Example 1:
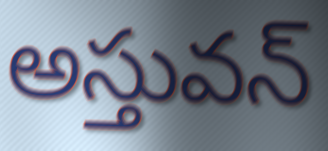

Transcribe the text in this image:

అస్తువన్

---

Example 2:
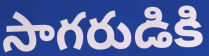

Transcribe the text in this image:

సాగరుడికి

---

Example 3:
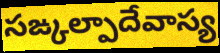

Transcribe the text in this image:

సఙ్కల్పాదేవాస్య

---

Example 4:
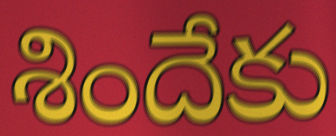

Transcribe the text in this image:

శిందేకు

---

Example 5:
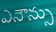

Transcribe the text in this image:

ఎనౌన్సు